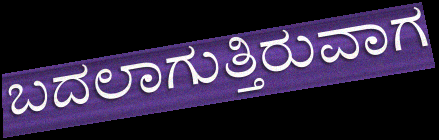
ಬದಲಾಗುತ್ತಿರುವಾಗ